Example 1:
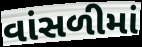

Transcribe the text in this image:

વાંસળીમાં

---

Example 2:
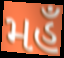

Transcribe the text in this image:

મહઁ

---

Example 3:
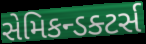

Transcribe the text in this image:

સેમિકન્ડક્ટર્સ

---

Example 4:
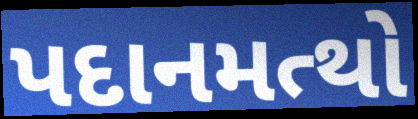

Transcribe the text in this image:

પદાનમત્થો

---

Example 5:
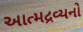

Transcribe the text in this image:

આત્મદ્રવ્યનો